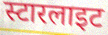
स्टारलाइट